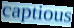
captious